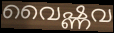
വൈഷ്ണവ